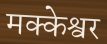
मक्केश्वर